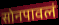
सोनपावलं